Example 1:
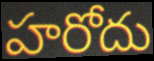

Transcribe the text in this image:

హరోదు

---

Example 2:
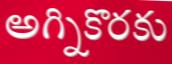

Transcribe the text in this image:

అగ్నికొరకు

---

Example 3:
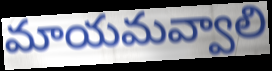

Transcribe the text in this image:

మాయమవ్వాలి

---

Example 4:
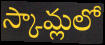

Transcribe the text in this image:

స్కామ్లలో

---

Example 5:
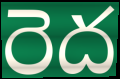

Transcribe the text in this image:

రెద